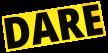
DARE